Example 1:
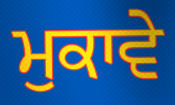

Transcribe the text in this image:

ਮੁਕਾਵੇ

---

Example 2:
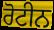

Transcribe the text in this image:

ਰੋਟੀਨ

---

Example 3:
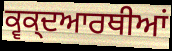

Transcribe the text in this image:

ਕ੍ਵਕ੍ਦਆਰਥੀਆਂ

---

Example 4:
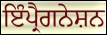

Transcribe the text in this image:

ਇੰਪ੍ਰੈਗਨੇਸ਼ਨ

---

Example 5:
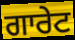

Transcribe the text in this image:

ਗਾਰੇਟ